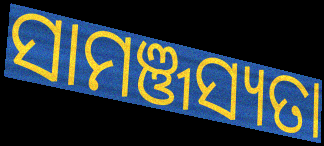
ସାମଞ୍ଜସ୍ୟତା